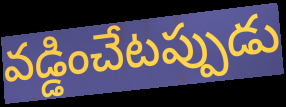
వడ్డించేటప్పుడు